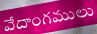
వేదాంగములు